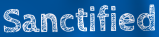
Sanctified